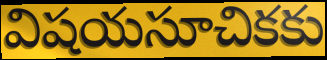
విషయసూచికకు